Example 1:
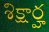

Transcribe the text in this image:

శిక్షార్హ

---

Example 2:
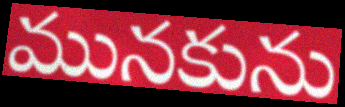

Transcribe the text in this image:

మునకును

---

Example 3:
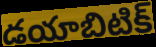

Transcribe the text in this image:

డయాబిటిక్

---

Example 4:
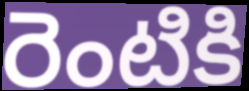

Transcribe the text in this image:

రెంటికి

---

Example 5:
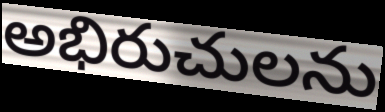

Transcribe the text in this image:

అభిరుచులను